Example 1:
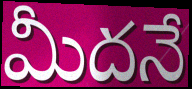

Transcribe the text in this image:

మీదనే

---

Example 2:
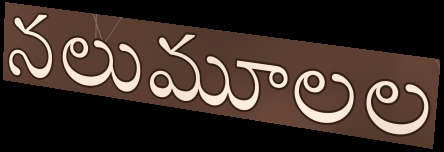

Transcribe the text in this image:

నలుమూలల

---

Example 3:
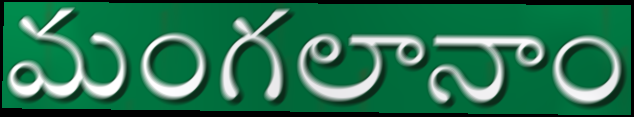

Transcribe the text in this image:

మంగలానాం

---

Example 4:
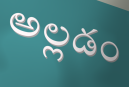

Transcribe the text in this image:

అల్లడం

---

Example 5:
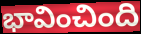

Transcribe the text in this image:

భావించింది